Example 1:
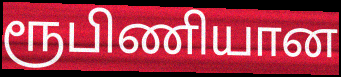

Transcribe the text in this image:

ரூபிணியான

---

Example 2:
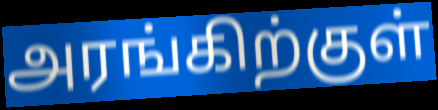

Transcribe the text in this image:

அரங்கிற்குள்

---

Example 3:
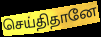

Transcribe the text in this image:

செய்திதானே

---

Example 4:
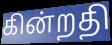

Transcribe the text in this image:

கின்றதி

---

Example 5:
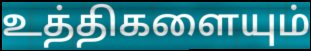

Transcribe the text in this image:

உத்திகளையும்